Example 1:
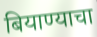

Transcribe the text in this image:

बियाण्याचा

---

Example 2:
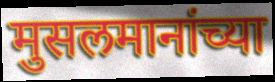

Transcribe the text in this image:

मुसलमानांच्या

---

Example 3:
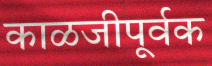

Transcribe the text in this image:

काळजीपूर्वक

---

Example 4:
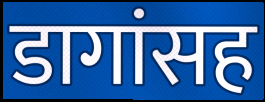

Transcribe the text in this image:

डागांसह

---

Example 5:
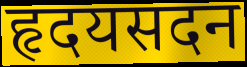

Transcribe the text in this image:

हृदयसदन